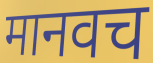
मानवच